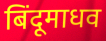
बिंदूमाधव